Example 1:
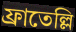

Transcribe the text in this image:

ফ্রাতেল্লি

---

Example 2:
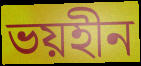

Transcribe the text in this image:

ভয়হীন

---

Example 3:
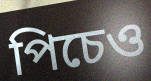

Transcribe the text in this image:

পিচেও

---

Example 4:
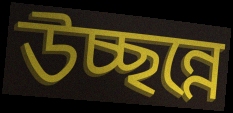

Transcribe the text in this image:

উচ্ছন্নে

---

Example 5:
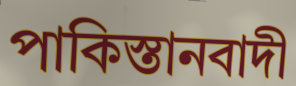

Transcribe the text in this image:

পাকিস্তানবাদী